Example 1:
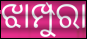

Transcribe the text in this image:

ଝାମ୍ପୁରା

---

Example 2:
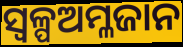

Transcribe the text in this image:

ସ୍ୱଳ୍ପଅମ୍ଳଜାନ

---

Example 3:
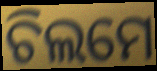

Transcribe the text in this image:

ଚିଲମେ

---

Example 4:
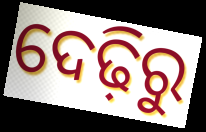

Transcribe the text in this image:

ଦେଢ଼ିରୁ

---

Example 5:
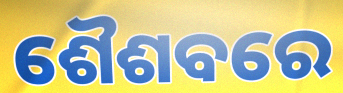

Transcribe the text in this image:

ଶୈଶବରେ